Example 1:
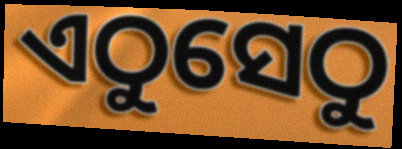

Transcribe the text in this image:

ଏଠୁସେଠୁ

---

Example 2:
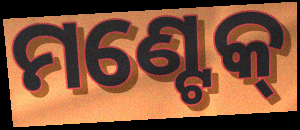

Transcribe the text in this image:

ମଣ୍ଟେକ୍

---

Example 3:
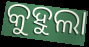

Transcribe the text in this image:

କୁହୁଲା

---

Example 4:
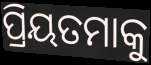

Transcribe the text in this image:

ପ୍ରିୟତମାକୁ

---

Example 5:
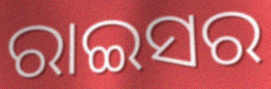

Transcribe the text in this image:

ରାଇସର